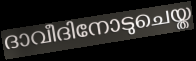
ദാവീദിനോടുചെയ്ത